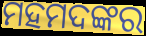
ମହମଦଙ୍କର